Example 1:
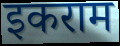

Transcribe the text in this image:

इकराम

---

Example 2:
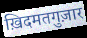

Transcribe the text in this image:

ख़िदमतगुज़ार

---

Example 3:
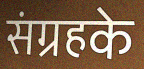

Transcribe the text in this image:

संग्रहके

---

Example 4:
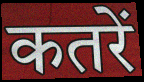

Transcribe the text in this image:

कतरें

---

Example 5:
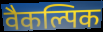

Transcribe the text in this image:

वैकल्पिक